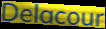
Delacour